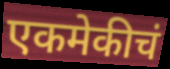
एकमेकीचं